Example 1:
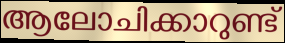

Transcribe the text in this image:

ആലോചിക്കാറുണ്ട്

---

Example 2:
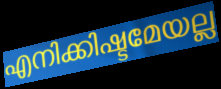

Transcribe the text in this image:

എനിക്കിഷ്ടമേയല്ല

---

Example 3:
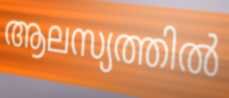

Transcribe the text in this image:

ആലസ്യത്തിൽ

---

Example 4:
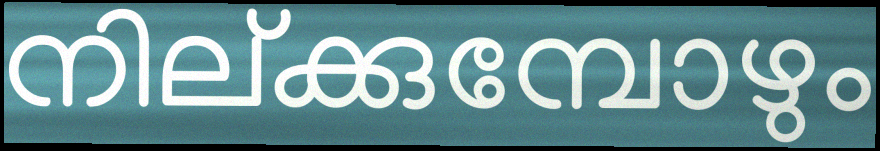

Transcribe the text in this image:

നില്ക്കുമ്പോഴും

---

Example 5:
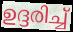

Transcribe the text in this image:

ഉദ്ദരിച്ച്